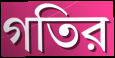
গতির